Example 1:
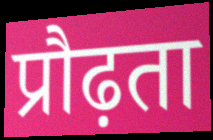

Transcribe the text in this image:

प्रौढ़ता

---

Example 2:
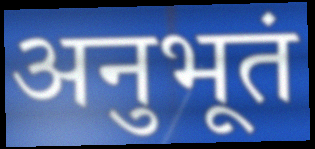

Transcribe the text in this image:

अनुभूतं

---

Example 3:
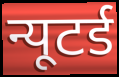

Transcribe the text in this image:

न्यूटर्ड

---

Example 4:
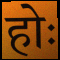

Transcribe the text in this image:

होः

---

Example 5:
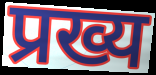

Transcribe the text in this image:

प्रख्य